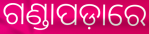
ଗଣ୍ଡାପଡ଼ାରେ